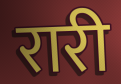
रारी